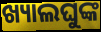
ଖ୍ୟାଲଘୁଙ୍କ